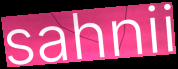
sahnii